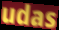
udas